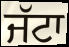
ਜੱਟਾ